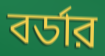
বর্ডার